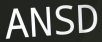
ANSD